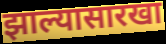
झाल्यासारखा